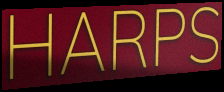
HARPS